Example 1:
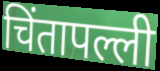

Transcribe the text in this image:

चिंतापल्ली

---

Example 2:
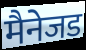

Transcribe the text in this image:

मैनेजड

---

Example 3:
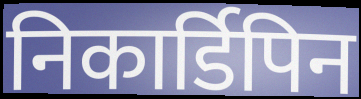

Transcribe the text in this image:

निकार्डिपिन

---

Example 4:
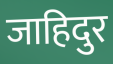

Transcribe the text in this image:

जाहिदुर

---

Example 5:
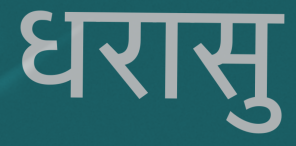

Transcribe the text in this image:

धरासु